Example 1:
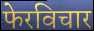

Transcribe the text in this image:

फेरविचार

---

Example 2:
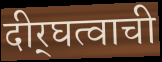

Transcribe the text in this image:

दीर्घत्वाची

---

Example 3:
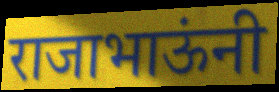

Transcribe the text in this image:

राजाभाऊंनी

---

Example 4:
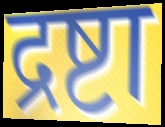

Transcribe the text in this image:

द्रष्टा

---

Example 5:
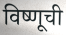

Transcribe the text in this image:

विष्णूची